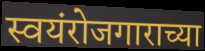
स्वयंरोजगाराच्या